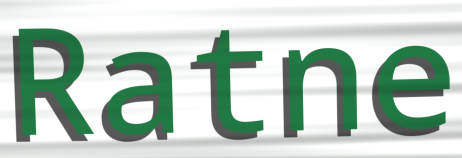
Ratne